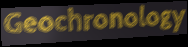
Geochronology